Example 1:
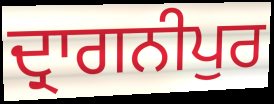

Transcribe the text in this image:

ਦ੍ਰਾਗਨੀਪੁਰ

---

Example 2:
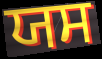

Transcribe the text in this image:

ਯਸ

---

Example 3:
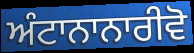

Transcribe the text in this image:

ਅੰਟਾਨਾਨਾਰੀਵੋ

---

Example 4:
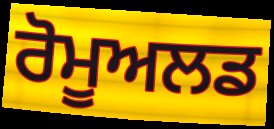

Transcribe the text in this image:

ਰੋਮੂਅਲਡ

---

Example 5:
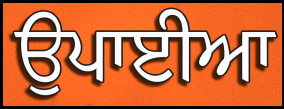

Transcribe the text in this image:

ਉਪਾਈਆ